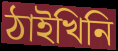
ঠাইখিনি